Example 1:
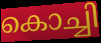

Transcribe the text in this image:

കൊച്ചി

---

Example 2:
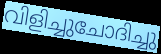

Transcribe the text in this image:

വിളിച്ചുചോദിച്ചു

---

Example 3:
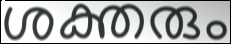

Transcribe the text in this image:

ശക്തരും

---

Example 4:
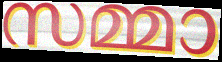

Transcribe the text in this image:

സമ്മാ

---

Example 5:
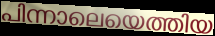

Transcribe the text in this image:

പിന്നാലെയെത്തിയ